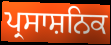
ਪ੍ਰਸਾਸ਼ਨਿਕ